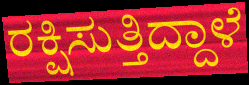
ರಕ್ಷಿಸುತ್ತಿದ್ದಾಳೆ